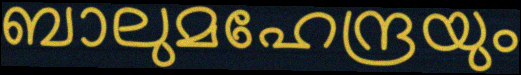
ബാലുമഹേന്ദ്രയും